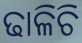
ଢାଳିଚି